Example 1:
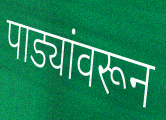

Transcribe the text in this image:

पाड्यांवरून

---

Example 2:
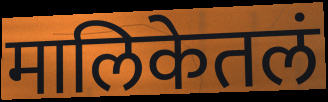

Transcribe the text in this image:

मालिकेतलं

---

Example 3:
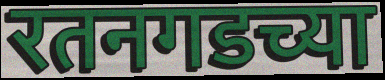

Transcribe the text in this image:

रतनगडच्या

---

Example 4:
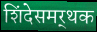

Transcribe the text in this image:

शिंदेसमर्थक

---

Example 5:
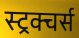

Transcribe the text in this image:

स्ट्रक्चर्स